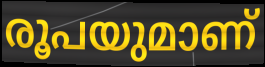
രൂപയുമാണ്